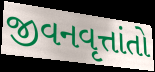
જીવનવૃત્તાંતો